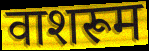
वाशरूम